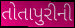
તોતાપુરીની